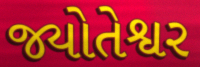
જ્યોતેશ્વર